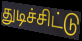
துடிச்சிட்டு